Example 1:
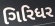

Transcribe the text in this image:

ગિરિધર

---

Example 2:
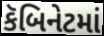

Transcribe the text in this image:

કૅબિનેટમાં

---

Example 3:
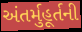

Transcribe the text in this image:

અંતર્મુહૂર્તની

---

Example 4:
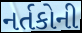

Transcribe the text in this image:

નર્તકોની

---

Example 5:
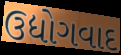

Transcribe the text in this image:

ઉદ્યોગવાદ